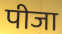
पीजा